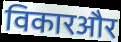
विकारऔर